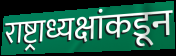
राष्ट्राध्यक्षांकडून